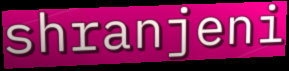
shranjeni